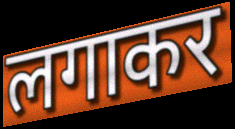
लगाकर